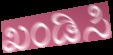
ಖಂಡಿಸಿ